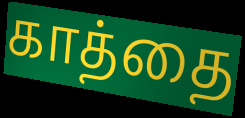
காத்தை